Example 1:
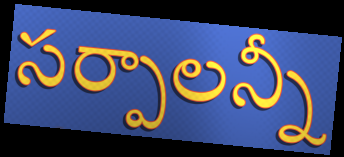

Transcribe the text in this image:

సర్పాలన్నీ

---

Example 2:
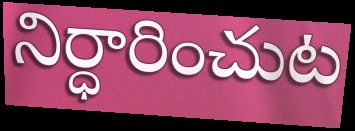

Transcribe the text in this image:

నిర్ధారించుట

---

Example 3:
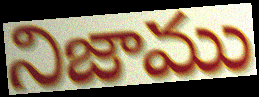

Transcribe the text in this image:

నిజాము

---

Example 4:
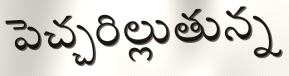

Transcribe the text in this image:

పెచ్చరిల్లుతున్న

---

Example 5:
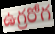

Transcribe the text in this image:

ఉగ్రరోగ